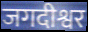
जगदीश्वर